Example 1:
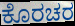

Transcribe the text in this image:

ಕೊರಚರ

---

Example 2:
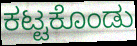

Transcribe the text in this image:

ಕಟ್ಟಕೊಂಡು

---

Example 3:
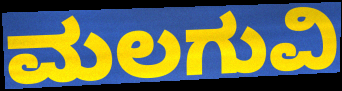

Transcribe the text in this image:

ಮಲಗುವಿ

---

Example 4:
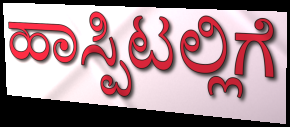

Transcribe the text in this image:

ಹಾಸ್ಪಿಟಲ್ಲಿಗೆ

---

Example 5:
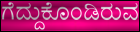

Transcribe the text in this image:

ಗೆದ್ದುಕೊಂಡಿರುವ